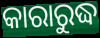
କାରାରୁଦ୍ଧ